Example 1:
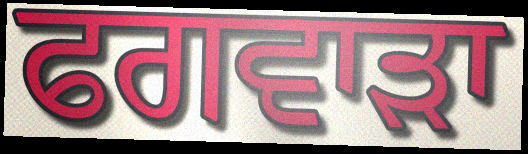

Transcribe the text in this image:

ਫਗਵਾੜਾ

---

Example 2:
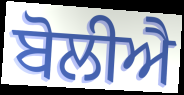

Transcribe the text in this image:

ਬੋਲੀਐ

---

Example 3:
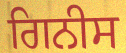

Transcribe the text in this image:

ਗਿਨੀਸ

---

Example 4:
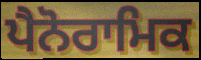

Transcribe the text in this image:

ਪੈਨੋਰਾਮਿਕ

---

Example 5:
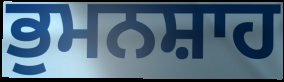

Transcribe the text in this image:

ਭੁਮਨਸ਼ਾਹ